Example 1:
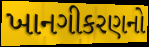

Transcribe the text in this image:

ખાનગીકરણનો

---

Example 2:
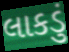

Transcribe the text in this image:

લાકડું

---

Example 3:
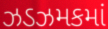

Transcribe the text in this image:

ઝડઝમકમાં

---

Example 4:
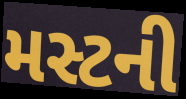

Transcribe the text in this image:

મસ્ટની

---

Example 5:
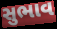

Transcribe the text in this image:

સુભાવ